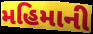
મહિમાની